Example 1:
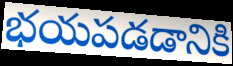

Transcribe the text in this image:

భయపడడానికి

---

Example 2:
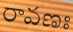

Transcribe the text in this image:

రావణః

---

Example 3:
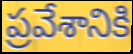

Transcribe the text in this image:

ప్రవేశానికి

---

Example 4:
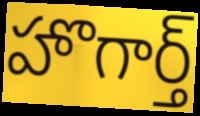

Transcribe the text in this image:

హొగార్త్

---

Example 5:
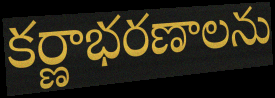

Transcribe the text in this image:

కర్ణాభరణాలను